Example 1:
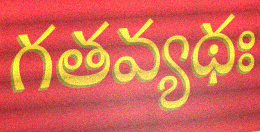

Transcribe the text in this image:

గతవ్యథః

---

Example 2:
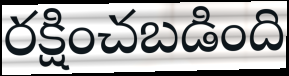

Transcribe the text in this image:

రక్షించబడింది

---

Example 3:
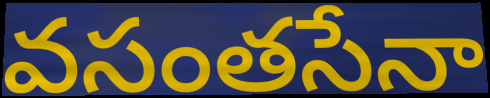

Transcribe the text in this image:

వసంతసేనా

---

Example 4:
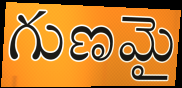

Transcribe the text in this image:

గుణమై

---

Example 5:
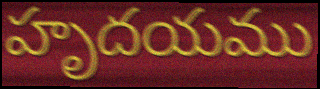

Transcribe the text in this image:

హృదయము